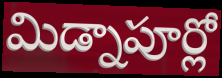
మిడ్నాపూర్లో